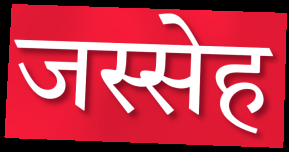
जस्सेह